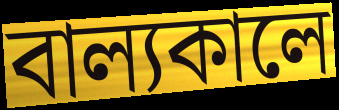
বাল্যকালে